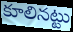
కూలినట్టు